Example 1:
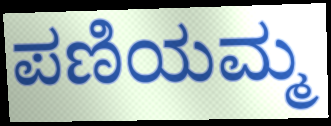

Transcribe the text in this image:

ಪಣಿಯಮ್ಮ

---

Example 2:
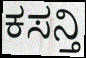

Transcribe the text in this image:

ಕಸನ್ತಿ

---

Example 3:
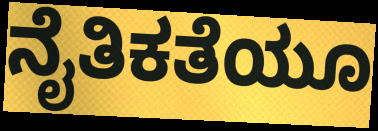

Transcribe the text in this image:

ನೈತಿಕತೆಯೂ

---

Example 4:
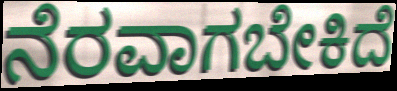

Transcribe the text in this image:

ನೆರವಾಗಬೇಕಿದೆ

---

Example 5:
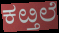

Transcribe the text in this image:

ಕೞ್ತಲೆ